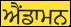
ਐਂਡਾਮਨ